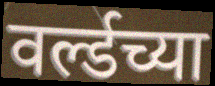
वर्ल्डच्या